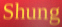
Shung